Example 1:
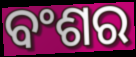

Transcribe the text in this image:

ବଂଶର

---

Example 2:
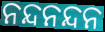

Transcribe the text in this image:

ନନ୍ଦନନ୍ଦନ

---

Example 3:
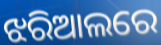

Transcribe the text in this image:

ଝରିଆଲରେ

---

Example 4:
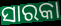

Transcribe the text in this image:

ସାରକା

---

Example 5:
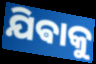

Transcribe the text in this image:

ଯିଵାକୁ